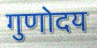
गुणोदय